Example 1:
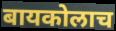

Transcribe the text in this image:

बायकोलाच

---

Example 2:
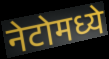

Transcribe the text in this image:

नेटोमध्ये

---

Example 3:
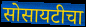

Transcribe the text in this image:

सोसायटीचा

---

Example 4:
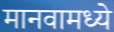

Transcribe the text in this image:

मानवामध्ये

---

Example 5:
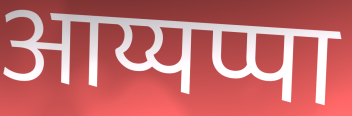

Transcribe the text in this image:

आय्यप्पा